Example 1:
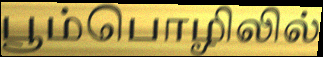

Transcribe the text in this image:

பூம்பொழிலில்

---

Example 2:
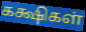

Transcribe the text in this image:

கக்ஷிகள்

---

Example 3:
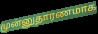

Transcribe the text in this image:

முன்னுதாரணமாக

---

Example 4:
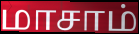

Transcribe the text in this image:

மாசாம்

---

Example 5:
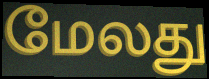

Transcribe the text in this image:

மேலது